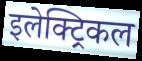
इलेक्ट्रिकल